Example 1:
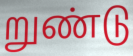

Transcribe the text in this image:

றுண்டு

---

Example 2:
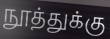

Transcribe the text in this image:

நூத்துக்கு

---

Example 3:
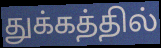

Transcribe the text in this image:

துக்கத்தில்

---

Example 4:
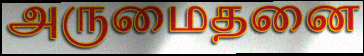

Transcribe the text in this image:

அருமைதனை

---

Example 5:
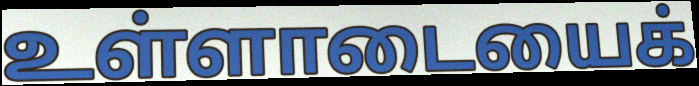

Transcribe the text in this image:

உள்ளாடையைக்